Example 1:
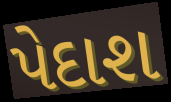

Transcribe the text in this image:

પેદાશ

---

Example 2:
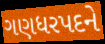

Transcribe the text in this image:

ગણધરપદને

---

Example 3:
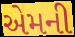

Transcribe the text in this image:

એમની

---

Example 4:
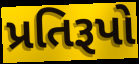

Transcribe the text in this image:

પ્રતિરૂપો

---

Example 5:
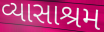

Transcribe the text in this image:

વ્યાસાશ્રમ